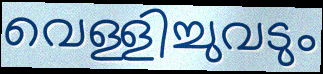
വെള്ളിച്ചുവടും